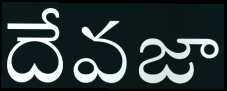
దేవజా